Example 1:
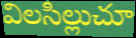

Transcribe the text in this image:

విలసిల్లుచూ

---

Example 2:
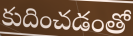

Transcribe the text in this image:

కుదించడంతో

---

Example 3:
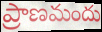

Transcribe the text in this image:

ప్రాణమందు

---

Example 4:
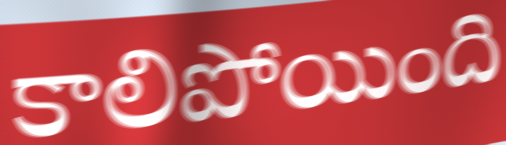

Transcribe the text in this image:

కాలిపోయింది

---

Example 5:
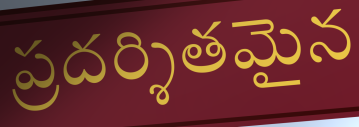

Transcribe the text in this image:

ప్రదర్శితమైన